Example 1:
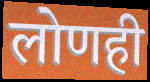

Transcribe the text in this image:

लोणही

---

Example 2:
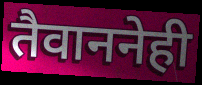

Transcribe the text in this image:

तैवाननेही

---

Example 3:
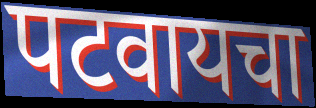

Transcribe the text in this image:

पटवायचा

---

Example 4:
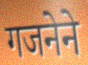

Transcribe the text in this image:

गजनेने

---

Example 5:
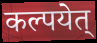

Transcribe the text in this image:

कल्पयेत्